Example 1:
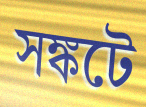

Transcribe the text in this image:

সঙ্কটে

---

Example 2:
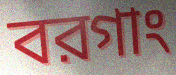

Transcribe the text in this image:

বরগাং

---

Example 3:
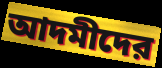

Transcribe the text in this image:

আদমীদের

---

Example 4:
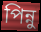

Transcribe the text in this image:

পিন্নু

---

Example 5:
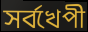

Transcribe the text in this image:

সর্বখেপী